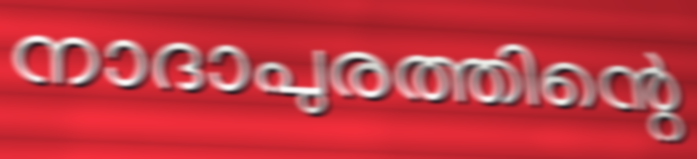
നാദാപുരത്തിന്റെ